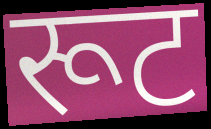
रूट